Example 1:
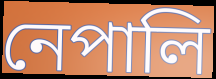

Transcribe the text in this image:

নেপালি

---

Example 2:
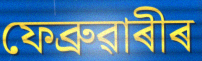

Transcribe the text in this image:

ফেব্ৰুৱাৰীৰ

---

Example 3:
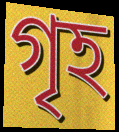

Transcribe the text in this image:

গৃহ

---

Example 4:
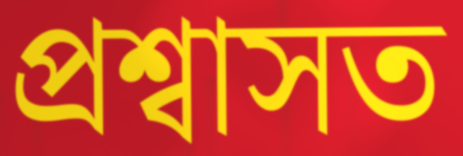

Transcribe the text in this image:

প্ৰশ্বাসত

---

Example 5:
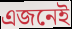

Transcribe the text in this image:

এজনেই